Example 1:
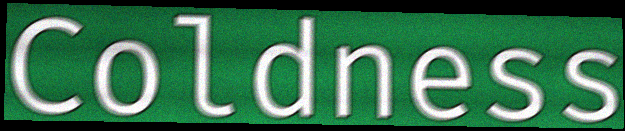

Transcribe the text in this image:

Coldness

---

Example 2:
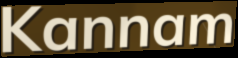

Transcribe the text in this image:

Kannam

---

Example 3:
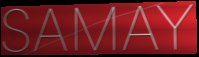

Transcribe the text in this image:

SAMAY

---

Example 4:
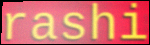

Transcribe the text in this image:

rashi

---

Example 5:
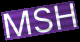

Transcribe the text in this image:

MSH